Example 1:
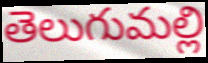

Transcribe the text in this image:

తెలుగుమల్లి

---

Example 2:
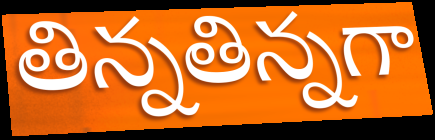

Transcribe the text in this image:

తిన్నతిన్నగా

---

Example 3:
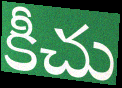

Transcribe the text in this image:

కీచు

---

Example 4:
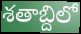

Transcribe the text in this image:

శతాబ్దిలో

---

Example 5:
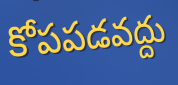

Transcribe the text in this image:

కోపపడవద్దు